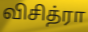
விசித்ரா